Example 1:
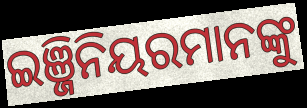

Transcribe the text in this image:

ଇଞ୍ଜିନିୟରମାନଙ୍କୁ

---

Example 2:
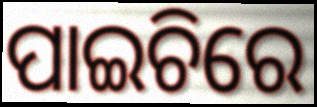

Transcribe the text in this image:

ପାଇଚିରେ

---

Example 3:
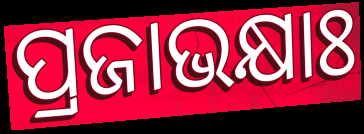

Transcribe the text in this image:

ପ୍ରଜାଭକ୍ଷାଃ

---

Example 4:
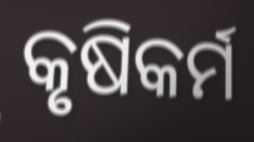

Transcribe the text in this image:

କୃଷିକର୍ମ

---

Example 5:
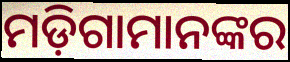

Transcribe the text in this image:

ମଡ଼ିଗାମାନଙ୍କର